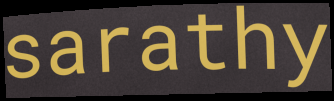
sarathy